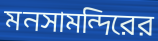
মনসামন্দিরের